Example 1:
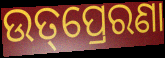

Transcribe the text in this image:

ଉତ୍‌ପ୍ରେରଣା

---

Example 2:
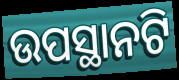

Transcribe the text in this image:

ଉପସ୍ଥାନଟି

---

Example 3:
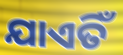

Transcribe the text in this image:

ଯାଏତିଁ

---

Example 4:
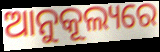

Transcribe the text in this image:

ଆନୁକୂଲ୍ୟରେ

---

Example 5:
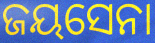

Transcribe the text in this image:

ଜୟସେନା